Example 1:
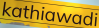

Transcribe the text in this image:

kathiawadi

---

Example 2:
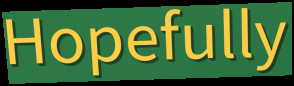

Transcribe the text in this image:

Hopefully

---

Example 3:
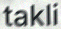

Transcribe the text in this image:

takli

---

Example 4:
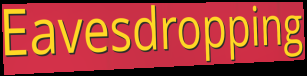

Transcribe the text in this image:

Eavesdropping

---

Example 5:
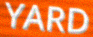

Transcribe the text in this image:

YARD